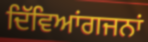
ਦਿੱਵਿਆਂਗਜਨਾਂ